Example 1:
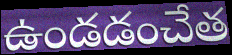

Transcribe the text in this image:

ఉండడంచేత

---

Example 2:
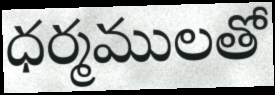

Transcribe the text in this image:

ధర్మములతో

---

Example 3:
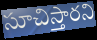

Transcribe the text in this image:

సూచిస్తారని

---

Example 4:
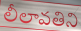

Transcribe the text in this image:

లీలావతిని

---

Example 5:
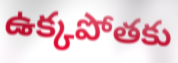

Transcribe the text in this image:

ఉక్కపోతకు